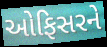
ઓફિસરને